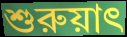
শুরুয়াৎ